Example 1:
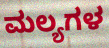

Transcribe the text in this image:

ಮಲ್ಯಗಳ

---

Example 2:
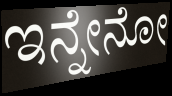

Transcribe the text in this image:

ಇನ್ನೇನೋ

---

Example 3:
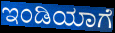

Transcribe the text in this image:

ಇಂಡಿಯಾಗೆ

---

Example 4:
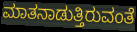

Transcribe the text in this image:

ಮಾತನಾಡುತ್ತಿರುವಂತೆ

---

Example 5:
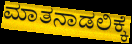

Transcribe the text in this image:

ಮಾತನಾಡಲಿಕ್ಕೆ